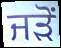
ਜੜੋਂ